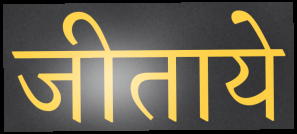
जीताये